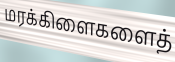
மரக்கிளைகளைத்